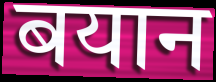
बयान